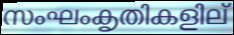
സംഘംകൃതികളില്